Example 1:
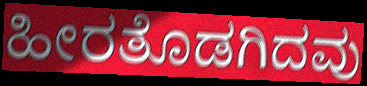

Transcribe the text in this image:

ಹೀರತೊಡಗಿದವು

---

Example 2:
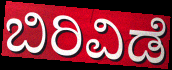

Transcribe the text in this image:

ಬಿರಿವಿಡೆ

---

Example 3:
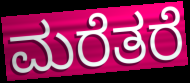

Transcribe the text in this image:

ಮರೆತರೆ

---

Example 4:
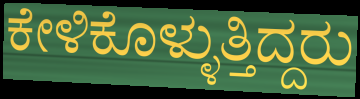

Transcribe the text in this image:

ಕೇಳಿಕೊಳ್ಳುತ್ತಿದ್ದರು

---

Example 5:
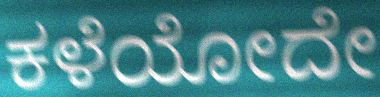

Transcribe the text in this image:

ಕಳೆಯೋದೇ